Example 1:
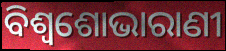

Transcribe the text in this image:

ବିଶ୍ୱଶୋଭାରାଣୀ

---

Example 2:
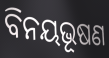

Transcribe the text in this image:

ବିନୟଭୂଷଣ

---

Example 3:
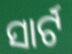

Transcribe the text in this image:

ସାର୍ଟ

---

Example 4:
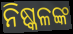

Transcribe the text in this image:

ନିଷ୍କଳଙ୍କ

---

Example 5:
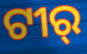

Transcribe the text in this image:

ଟୀର୍